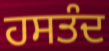
ਹਸਤੰਦ